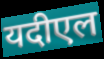
यदीएल